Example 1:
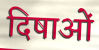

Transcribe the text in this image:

दिषाओं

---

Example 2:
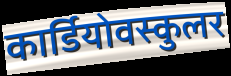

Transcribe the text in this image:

कार्डियोवस्कुलर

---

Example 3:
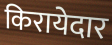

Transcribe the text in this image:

किरायेदार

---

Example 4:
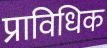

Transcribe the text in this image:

प्राविधिक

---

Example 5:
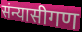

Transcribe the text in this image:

संन्यासीगण